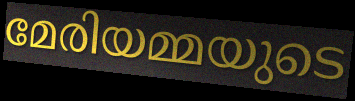
മേരിയമ്മയുടെ